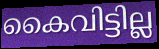
കൈവിട്ടില്ല